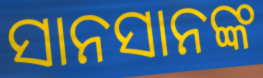
ସାନସାନଙ୍କ